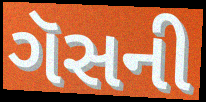
ગૅસની